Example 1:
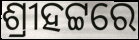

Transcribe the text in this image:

ଶ୍ରୀହଟ୍ଟରେ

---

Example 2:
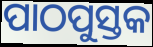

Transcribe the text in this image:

ପାଠପୁସ୍ତକ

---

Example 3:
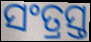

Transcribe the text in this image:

ସଂତ୍ରସ୍ତ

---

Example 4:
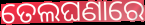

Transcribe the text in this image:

ତେଲଘଣାରେ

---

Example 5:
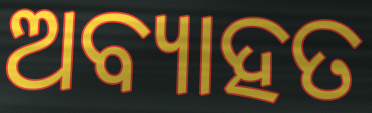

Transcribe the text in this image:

ଅବ୍ୟାହତ